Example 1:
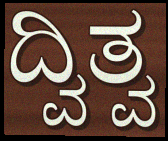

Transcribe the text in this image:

ದ್ವಿತ್ವ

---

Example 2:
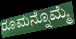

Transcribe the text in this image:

ರೂಮನ್ನೊಮ್ಮೆ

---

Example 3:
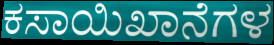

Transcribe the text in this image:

ಕಸಾಯಿಖಾನೆಗಳ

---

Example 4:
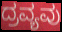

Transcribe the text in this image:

ದ್ರವ್ಯವು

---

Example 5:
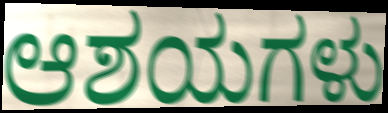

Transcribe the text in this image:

ಆಶಯಗಳು